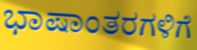
ಭಾಷಾಂತರಗಳಿಗೆ